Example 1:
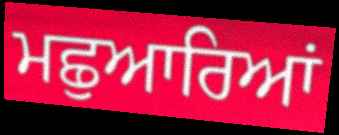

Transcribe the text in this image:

ਮਛੁਆਰਿਆਂ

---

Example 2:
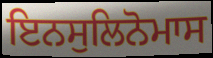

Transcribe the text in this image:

ਇਨਸੁਲਿਨੋਮਾਸ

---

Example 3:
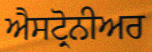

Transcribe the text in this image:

ਐਸਟ੍ਰੋਨੀਅਰ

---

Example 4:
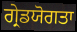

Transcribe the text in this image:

ਗ੍ਰੇਡਯੋਗਤਾ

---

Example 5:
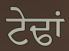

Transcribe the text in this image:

ਟੇਢਾਂ